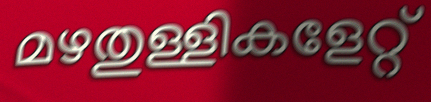
മഴതുള്ളികളേറ്റ്